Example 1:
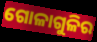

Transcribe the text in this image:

ଗୋଳାଗୁଳିର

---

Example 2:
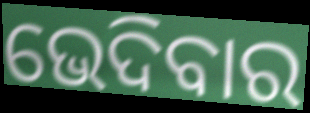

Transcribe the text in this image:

ଭେଦିବାର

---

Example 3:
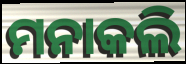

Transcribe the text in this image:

ମନାକଲି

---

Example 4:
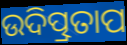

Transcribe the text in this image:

ଉଦିତ୍ପ୍ରତାପ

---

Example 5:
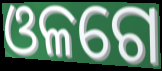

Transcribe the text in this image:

ଓଳଗେ